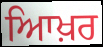
ਆਿਖ਼ਰ